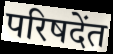
परिषदेंत